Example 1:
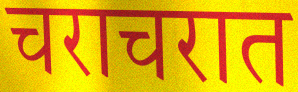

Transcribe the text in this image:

चराचरात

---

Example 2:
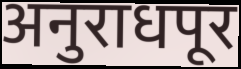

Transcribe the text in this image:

अनुराधपूर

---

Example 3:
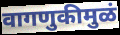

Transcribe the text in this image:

वागणुकीमुळं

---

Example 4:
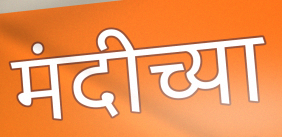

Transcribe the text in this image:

मंदीच्या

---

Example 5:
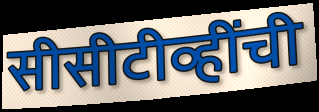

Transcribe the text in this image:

सीसीटीव्हींची